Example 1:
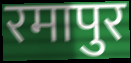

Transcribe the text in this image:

रमापुर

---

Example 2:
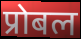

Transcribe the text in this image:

प्रोबल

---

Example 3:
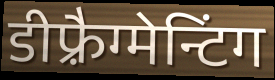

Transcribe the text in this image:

डीफ़्रैग्मेन्टिंग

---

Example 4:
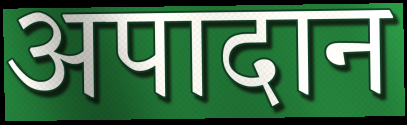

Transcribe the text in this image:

अपादान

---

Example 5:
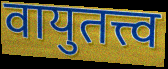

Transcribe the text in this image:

वायुतत्त्व